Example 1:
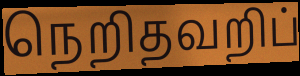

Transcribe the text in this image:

நெறிதவறிப்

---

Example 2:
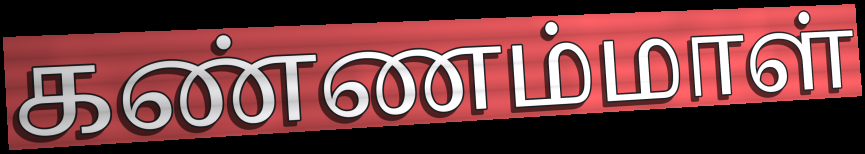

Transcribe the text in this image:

கண்ணம்மாள்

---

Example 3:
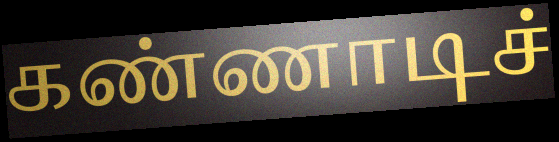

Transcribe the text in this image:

கண்ணாடிச்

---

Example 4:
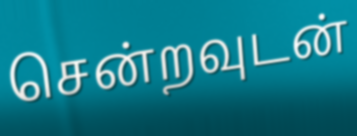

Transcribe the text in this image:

சென்றவுடன்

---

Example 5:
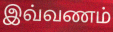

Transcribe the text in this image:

இவ்வணம்